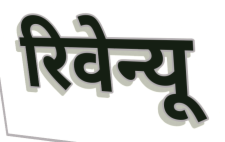
रिवेन्यू